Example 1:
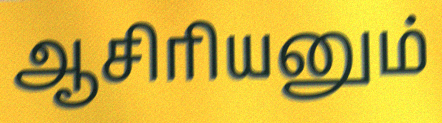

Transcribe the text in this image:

ஆசிரியனும்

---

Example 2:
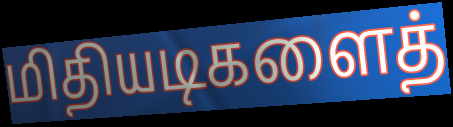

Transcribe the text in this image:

மிதியடிகளைத்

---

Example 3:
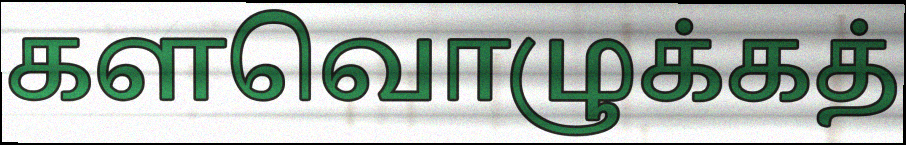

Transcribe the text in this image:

களவொழுக்கத்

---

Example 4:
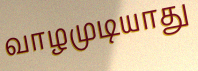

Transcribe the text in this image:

வாழமுடியாது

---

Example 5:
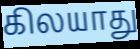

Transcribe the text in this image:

கிலயாது